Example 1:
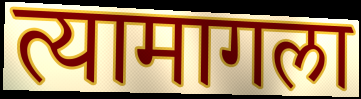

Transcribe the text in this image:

त्यामागला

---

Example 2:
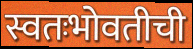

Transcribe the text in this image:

स्वतःभोवतीची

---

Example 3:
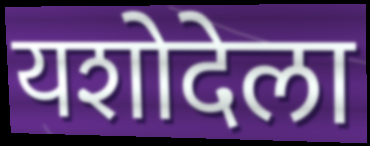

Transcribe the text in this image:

यशोदेला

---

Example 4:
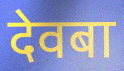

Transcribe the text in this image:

देवबा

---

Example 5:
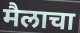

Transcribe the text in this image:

मैलाचा